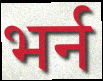
भर्न